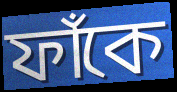
ফাঁকে